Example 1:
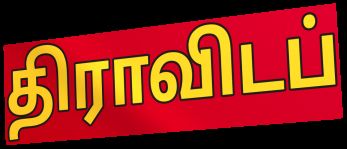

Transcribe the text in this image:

திராவிடப்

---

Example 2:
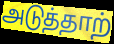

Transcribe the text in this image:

அடுத்தாற்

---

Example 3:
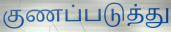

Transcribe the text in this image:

குணப்படுத்து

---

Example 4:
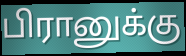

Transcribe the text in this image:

பிரானுக்கு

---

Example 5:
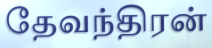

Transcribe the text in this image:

தேவந்திரன்